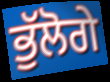
ਭੁੱਲੋਗੇ